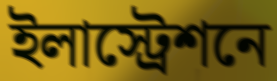
ইলাস্ট্রেশনে